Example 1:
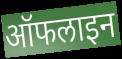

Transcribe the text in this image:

ऑफलाइन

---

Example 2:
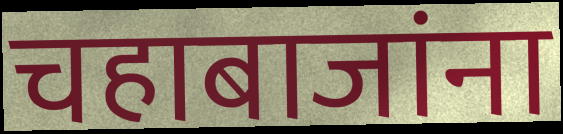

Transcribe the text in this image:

चहाबाजांना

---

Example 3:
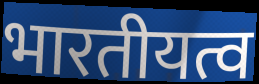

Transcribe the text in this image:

भारतीयत्व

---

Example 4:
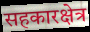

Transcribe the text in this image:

सहकारक्षेत्र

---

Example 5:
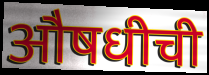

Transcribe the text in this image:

औषधीची